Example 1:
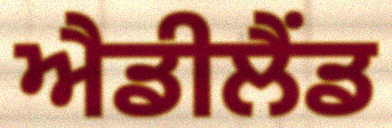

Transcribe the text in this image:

ਐਡੀਲੈਂਡ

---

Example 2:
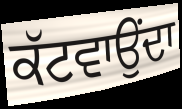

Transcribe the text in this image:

ਕੱਟਵਾਉਂਦਾ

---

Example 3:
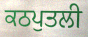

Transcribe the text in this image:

ਕਠਪੁਤਲੀ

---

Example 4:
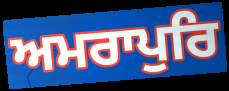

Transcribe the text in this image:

ਅਮਰਾਪੁਰਿ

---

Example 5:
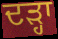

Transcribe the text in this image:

ਦੜ੍ਹਾ